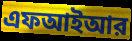
এফআইআর